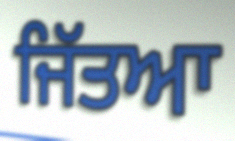
ਜਿੱਤਆ